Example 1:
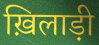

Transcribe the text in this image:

ख़िलाड़ी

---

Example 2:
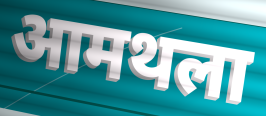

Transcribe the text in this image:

आमथला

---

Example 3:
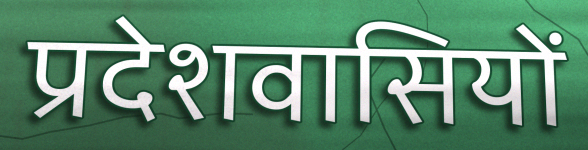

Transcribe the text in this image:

प्रदेशवासियों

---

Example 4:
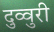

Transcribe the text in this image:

दुव्वुरी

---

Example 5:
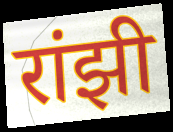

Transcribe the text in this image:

रांझी